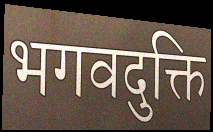
भगवदुक्ति